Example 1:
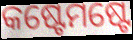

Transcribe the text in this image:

କଷ୍ଟେମଷ୍ଟେ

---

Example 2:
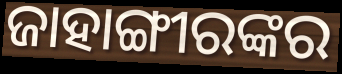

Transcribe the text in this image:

ଜାହାଙ୍ଗୀରଙ୍କର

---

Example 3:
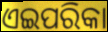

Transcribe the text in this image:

ଏଇପରିକା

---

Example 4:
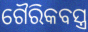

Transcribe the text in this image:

ଗୈରିକବସ୍ତ୍ର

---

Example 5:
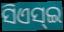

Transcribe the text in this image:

ସିଏସ୍ଇ